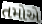
તમોએ